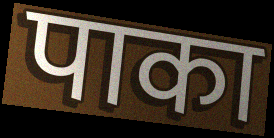
पाका